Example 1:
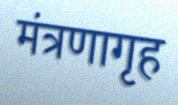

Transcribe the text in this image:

मंत्रणागृह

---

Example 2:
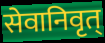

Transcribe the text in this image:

सेवानिवृत्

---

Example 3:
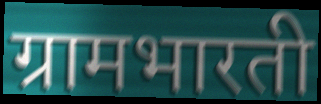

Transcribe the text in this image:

ग्रामभारती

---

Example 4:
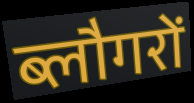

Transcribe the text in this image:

ब्लौगरों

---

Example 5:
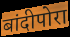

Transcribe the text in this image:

बांदीपोरा